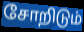
சோறிடும்